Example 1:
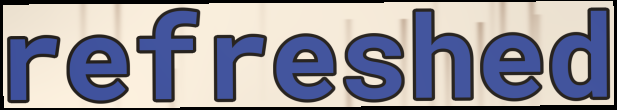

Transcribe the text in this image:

refreshed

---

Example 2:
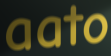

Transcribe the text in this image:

aato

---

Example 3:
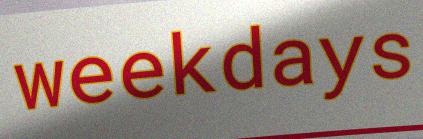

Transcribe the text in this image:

weekdays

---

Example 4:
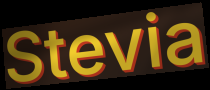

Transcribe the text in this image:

Stevia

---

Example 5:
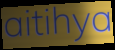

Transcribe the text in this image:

aitihya